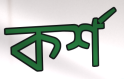
কর্শ